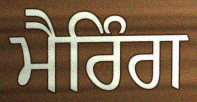
ਮੈਰਿੰਗ